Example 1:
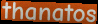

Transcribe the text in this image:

thanatos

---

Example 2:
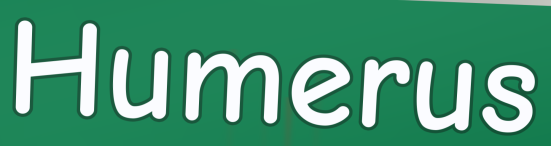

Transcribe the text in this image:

Humerus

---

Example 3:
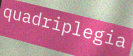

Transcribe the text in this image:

quadriplegia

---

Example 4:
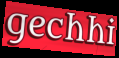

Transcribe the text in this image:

gechhi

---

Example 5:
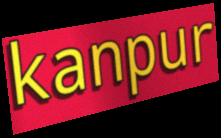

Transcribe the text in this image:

kanpur